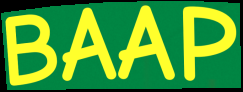
BAAP